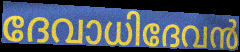
ദേവാധിദേവൻ